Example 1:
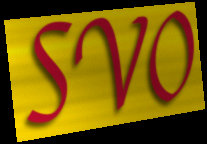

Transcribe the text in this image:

SVO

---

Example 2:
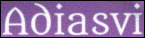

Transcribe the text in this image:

Adiasvi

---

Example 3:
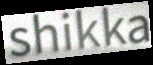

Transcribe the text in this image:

shikka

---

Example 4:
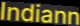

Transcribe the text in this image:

Indiann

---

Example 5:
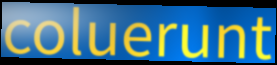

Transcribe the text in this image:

coluerunt